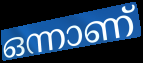
ഒന്നാണ്